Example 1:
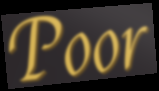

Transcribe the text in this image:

Poor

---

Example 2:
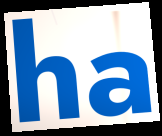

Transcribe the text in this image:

ha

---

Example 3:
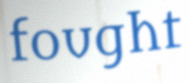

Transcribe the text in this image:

fought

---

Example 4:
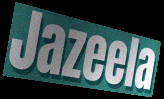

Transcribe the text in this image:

Jazeela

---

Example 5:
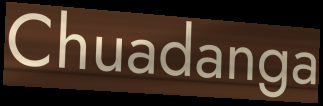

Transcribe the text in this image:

Chuadanga